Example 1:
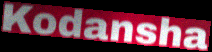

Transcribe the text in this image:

Kodansha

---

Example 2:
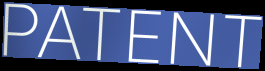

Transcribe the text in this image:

PATENT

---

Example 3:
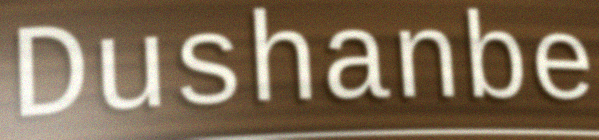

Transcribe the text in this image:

Dushanbe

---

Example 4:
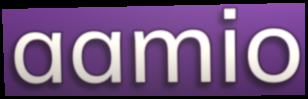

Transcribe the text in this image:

aamio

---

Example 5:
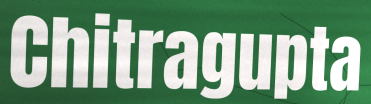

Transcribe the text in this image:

Chitragupta